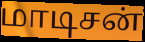
மாடிசன்